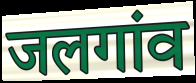
जलगांव